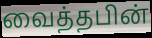
வைத்தபின்